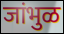
जांभुळ